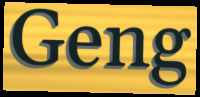
Geng